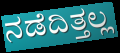
ನಡೆದಿತ್ತಲ್ಲ